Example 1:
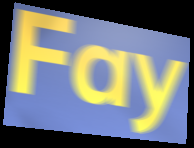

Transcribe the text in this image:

Fay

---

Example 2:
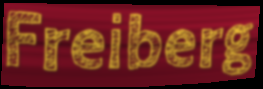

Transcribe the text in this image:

Freiberg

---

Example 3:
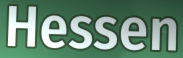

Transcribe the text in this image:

Hessen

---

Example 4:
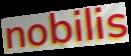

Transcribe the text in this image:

nobilis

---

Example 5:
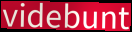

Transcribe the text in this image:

videbunt